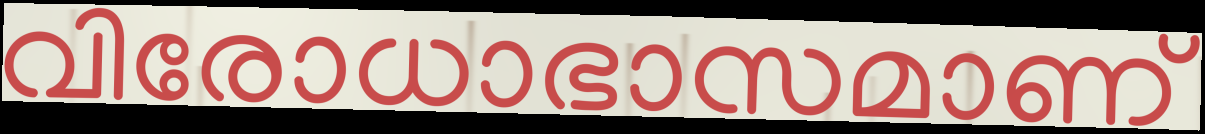
വിരോധാഭാസമാണ്